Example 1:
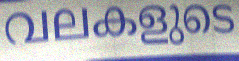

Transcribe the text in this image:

വലകളുടെ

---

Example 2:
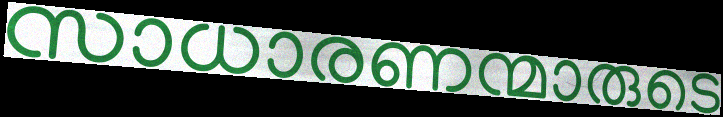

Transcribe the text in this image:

സാധാരണന്മാരുടെ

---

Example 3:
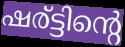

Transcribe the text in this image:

ഷര്ട്ടിന്റെ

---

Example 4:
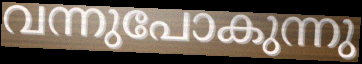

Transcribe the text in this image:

വന്നുപോകുന്നു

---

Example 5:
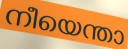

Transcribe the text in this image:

നീയെന്താ